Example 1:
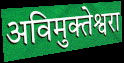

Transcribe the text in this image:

अविमुक्तेश्वरा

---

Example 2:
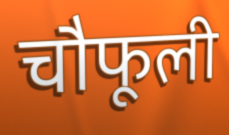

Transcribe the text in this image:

चौफूली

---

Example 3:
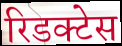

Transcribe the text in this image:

रिडक्टेस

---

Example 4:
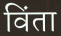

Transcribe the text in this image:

विंता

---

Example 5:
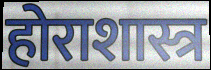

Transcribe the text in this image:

होराशास्त्र